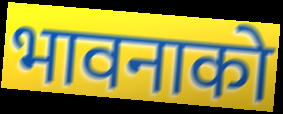
भावनाको